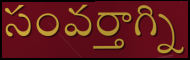
సంవర్తాగ్ని